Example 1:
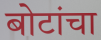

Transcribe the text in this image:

बोटांचा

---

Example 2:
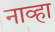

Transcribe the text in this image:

नाव्हा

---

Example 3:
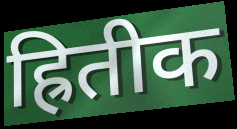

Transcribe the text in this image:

ह्रितीक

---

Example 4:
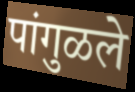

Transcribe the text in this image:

पांगुळले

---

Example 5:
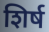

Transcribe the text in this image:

शिर्ष